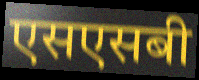
एसएसबी